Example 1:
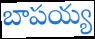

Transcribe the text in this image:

బాపయ్య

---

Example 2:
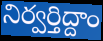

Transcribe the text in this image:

నిర్వర్తిద్దాం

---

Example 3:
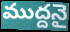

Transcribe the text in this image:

ముద్దనై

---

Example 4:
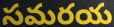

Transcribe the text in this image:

సమరయ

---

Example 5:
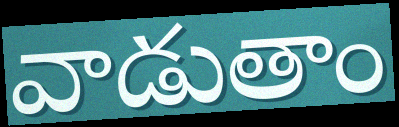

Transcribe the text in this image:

వాడుతాం